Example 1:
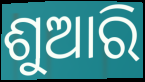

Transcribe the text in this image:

ଶୁଆରି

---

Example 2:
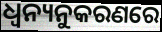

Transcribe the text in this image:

ଧ୍ଵନ୍ୟନୁକରଣରେ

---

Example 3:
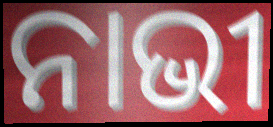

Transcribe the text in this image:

ନାଭୀ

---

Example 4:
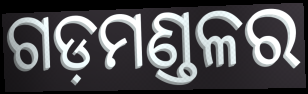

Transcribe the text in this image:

ଗଡ଼ମଣ୍ଡଳର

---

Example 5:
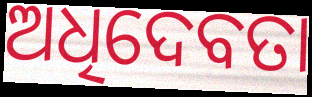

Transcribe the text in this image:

ଅଧିଦେବତା